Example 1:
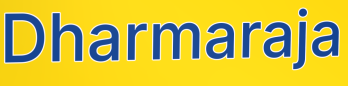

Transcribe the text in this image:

Dharmaraja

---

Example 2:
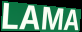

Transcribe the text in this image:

LAMA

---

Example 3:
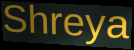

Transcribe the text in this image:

Shreya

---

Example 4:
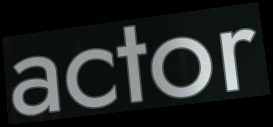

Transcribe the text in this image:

actor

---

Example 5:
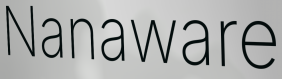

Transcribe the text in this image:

Nanaware